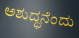
ಅಶುದ್ಧನೆಂದು